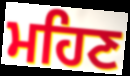
ਮਹਿਣ